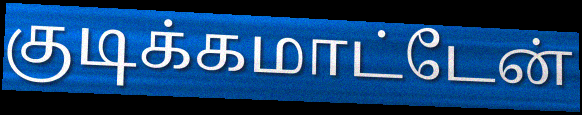
குடிக்கமாட்டேன்